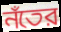
নঁতের